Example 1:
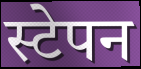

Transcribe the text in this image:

स्टेपन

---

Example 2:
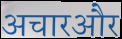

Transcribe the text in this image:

अचारऔर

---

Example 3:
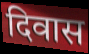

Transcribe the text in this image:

दिवास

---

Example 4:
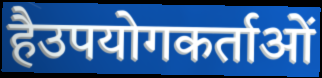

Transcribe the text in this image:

हैउपयोगकर्ताओं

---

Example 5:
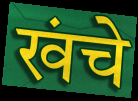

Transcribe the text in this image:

खंचे